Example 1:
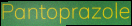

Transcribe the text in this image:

Pantoprazole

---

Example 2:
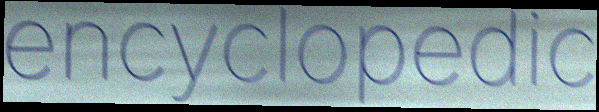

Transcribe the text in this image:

encyclopedic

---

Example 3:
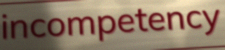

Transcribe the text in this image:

incompetency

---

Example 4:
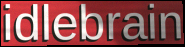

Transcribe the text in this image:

idlebrain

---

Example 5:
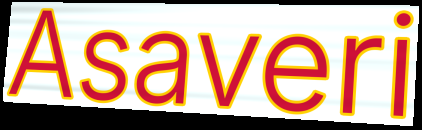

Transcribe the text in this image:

Asaveri